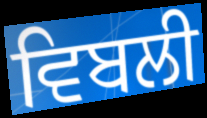
ਵਿਬਲੀ